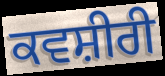
ਕਵਸ਼ੀਰੀ